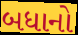
બધાનો